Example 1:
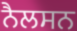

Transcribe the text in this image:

ਨੈਲਸਨ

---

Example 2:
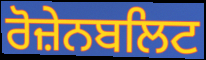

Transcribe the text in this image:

ਰੋਜ਼ੇਨਬਲਿਟ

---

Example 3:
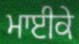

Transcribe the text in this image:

ਮਾਈਕੇ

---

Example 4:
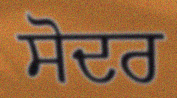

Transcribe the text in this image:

ਸੋਦਰ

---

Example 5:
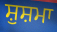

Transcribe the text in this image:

ਸ਼ੁਸ਼ਮਾ